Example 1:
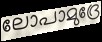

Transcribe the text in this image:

ലോപാമുദ്രേ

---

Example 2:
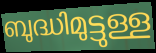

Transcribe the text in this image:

ബുദ്ധിമുട്ടുള്ള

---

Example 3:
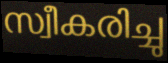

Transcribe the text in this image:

സ്വീകരിച്ചു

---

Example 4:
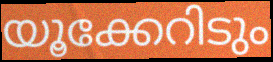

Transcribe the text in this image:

യൂക്കേറിടും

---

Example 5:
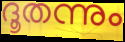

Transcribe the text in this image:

ദൂതന്നും